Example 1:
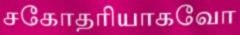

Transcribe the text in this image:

சகோதரியாகவோ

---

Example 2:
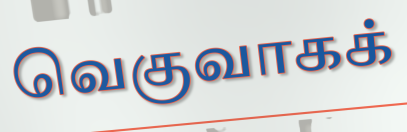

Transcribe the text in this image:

வெகுவாகக்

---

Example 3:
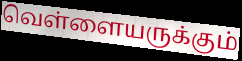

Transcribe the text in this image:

வெள்ளையருக்கும்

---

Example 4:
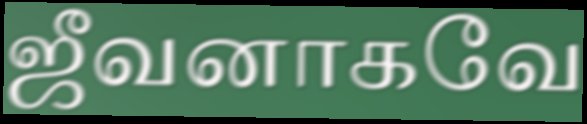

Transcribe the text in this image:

ஜீவனாகவே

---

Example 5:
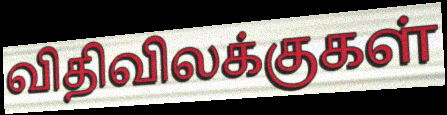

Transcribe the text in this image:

விதிவிலக்குகள்